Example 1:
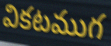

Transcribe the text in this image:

వికటముగ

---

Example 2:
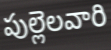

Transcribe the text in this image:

పుల్లెలవారి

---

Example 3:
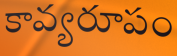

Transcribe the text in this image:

కావ్యరూపం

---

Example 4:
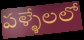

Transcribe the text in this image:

పళ్ళేలలో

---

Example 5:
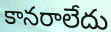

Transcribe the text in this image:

కానరాలేదు